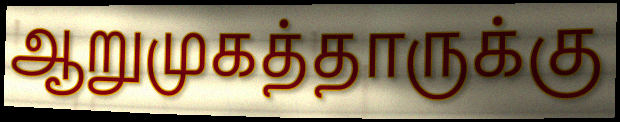
ஆறுமுகத்தாருக்கு